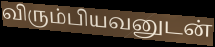
விரும்பியவனுடன்